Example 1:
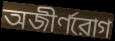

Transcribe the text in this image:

অজীর্ণরোগ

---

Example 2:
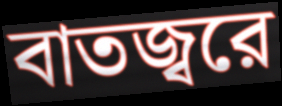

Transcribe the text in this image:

বাতজ্বরে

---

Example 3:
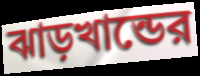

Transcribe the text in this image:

ঝাড়খান্ডের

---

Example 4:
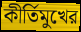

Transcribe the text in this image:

কীর্তিমুখের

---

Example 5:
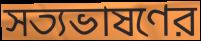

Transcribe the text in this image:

সত্যভাষণের